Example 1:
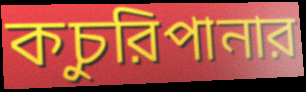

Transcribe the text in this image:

কচুরিপানার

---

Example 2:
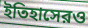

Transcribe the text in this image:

ইতিহাসেরও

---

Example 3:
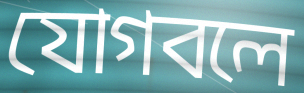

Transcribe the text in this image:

যোগবলে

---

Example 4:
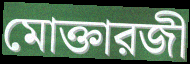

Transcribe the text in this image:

মোক্তারজী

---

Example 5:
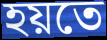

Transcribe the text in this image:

হয়তে